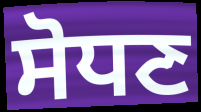
ਸੋਧਣ